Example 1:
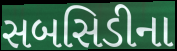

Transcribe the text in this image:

સબસિડીના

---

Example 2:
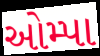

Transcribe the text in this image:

ઓમ્પા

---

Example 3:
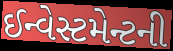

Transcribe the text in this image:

ઈન્વેસ્ટમેન્ટની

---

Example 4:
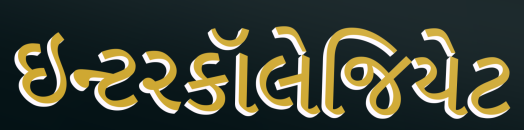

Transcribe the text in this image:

ઇન્ટરકૉલેજિયેટ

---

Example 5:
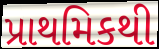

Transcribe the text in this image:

પ્રાથમિકથી